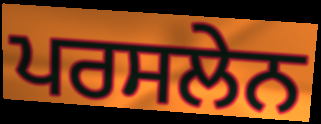
ਪਰਸਲੇਨ